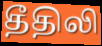
தீதிலி